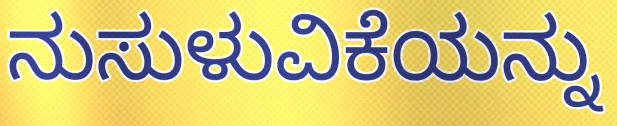
ನುಸುಳುವಿಕೆಯನ್ನು